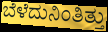
ಬೆಳೆದುನಿಂತಿತ್ತು